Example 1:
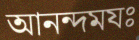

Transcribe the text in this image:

আনন্দমযঃ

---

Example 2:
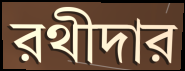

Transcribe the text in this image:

রথীদার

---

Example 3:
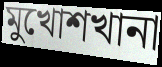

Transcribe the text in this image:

মুখোশখানা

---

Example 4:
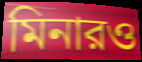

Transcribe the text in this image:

মিনারও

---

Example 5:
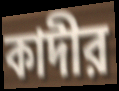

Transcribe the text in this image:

কাদীর